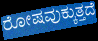
ರೋಷವುಕ್ಕುತ್ತದೆ